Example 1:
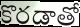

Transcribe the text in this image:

కొరడాతో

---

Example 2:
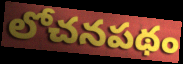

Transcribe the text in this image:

లోచనపథం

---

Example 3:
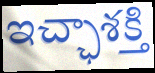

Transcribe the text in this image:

ఇచ్ఛాశక్తి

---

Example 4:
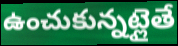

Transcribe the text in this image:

ఉంచుకున్నట్లైతే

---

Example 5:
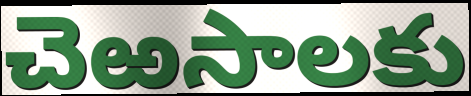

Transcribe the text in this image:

చెఱసాలకు